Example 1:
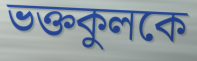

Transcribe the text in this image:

ভক্তকুলকে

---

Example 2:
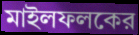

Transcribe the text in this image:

মাইলফলকের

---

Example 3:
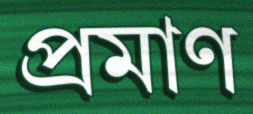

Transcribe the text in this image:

প্রমাণ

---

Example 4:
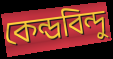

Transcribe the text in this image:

কেন্দ্রবিন্দু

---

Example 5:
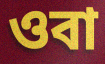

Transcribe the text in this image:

ওবা